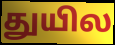
துயில